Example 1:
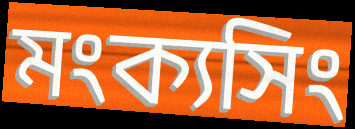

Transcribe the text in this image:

মংক্যসিং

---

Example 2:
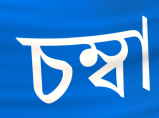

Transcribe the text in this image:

চম্বা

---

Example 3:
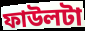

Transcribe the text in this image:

ফাউলটা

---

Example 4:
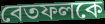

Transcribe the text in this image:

বেতফলকে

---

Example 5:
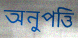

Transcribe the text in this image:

অনুপত্তি